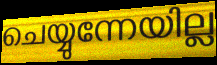
ചെയ്യുന്നേയില്ല